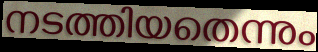
നടത്തിയതെന്നും